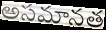
అసమానత